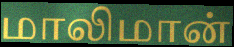
மாலிமான்